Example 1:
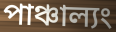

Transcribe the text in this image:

পাঞ্চাল্যং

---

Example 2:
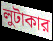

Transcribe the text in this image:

লুটাকার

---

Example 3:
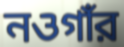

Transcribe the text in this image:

নওগাঁর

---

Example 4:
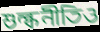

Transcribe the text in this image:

শুল্কনীতিও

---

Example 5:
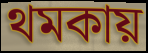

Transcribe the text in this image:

থমকায়